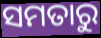
ସମତାରୁ